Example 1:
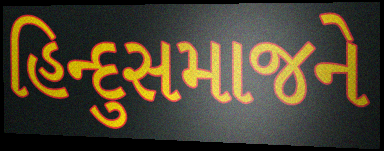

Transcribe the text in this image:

હિન્દુસમાજને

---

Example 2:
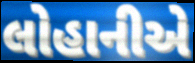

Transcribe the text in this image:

લોહાનીએ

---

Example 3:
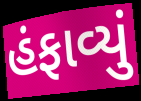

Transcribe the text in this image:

હંફાવ્યું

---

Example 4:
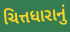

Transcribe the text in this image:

ચિત્તધારાનું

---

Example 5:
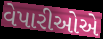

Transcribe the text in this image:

વેપારીઓએ